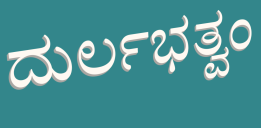
ದುರ್ಲಭತ್ವಂ